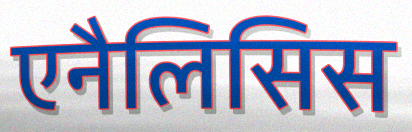
एनैलिसिस